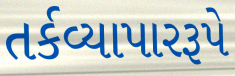
તર્કવ્યાપારરૂપે